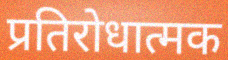
प्रतिरोधात्मक